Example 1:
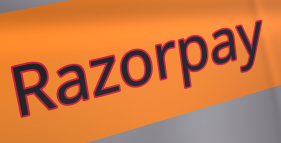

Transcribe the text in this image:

Razorpay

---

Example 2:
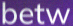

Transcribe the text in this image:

betw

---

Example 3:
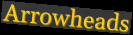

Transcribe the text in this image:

Arrowheads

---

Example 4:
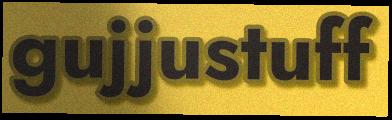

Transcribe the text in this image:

gujjustuff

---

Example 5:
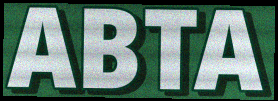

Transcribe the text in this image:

ABTA